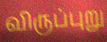
விருப்புறு